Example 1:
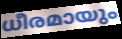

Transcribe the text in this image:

ധീരമായും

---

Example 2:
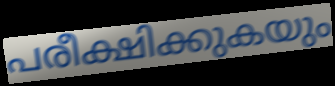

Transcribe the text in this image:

പരീക്ഷിക്കുകയും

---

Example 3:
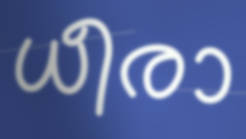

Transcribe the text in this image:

ധീരാ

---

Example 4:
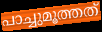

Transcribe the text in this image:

പാച്ചുമൂത്തത്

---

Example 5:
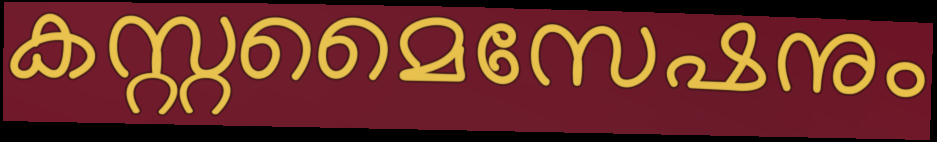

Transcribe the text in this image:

കസ്റ്റമൈസേഷനും